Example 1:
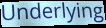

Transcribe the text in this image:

Underlying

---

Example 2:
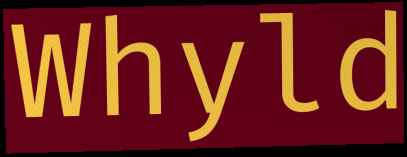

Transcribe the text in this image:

Whyld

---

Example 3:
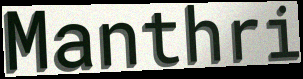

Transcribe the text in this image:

Manthri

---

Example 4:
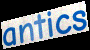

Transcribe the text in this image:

antics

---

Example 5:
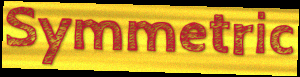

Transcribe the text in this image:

Symmetric